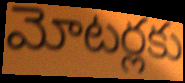
మోటర్లకు